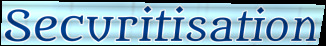
Securitisation